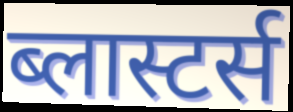
ब्लास्टर्स